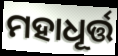
ମହାଧୂର୍ତ୍ତ